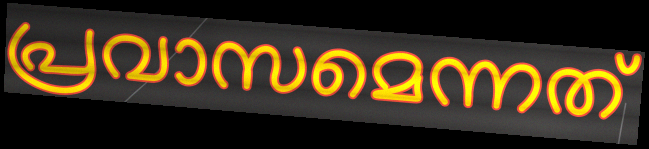
പ്രവാസമെന്നത്